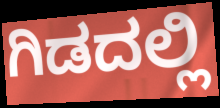
ಗಿಡದಲ್ಲಿ